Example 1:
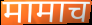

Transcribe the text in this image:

मामाच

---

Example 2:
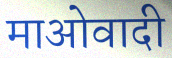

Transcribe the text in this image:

माओवादी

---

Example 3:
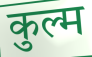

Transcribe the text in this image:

कुल्म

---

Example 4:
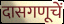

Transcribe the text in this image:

दासगणूचें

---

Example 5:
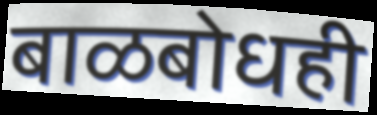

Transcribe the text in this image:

बाळबोधही